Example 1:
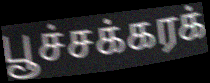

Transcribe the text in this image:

பூச்சக்கரக்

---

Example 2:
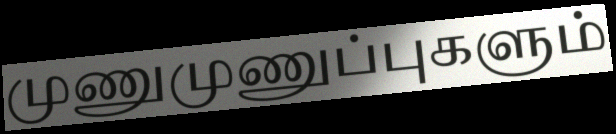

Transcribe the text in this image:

முணுமுணுப்புகளும்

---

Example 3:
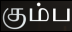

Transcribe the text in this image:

கும்ப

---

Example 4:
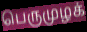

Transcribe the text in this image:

பெருமுழக்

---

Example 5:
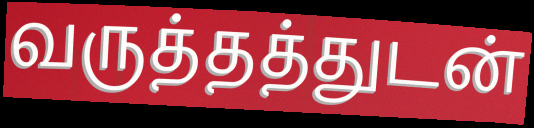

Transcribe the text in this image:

வருத்தத்துடன்